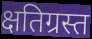
क्षतिग्रस्त